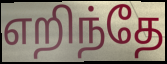
எறிந்தே